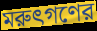
মরুৎগণের